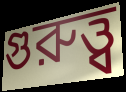
গুৰুত্ত্ব